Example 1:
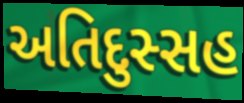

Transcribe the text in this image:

અતિદુસ્સહ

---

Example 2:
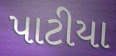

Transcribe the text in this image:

પાટીયા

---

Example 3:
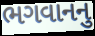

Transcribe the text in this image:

ભગવાનનુ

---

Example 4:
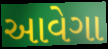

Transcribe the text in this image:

આવેગા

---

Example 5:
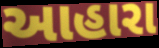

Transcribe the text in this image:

આહારા